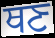
ਥਣ